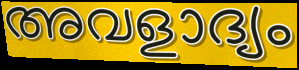
അവളാദ്യം